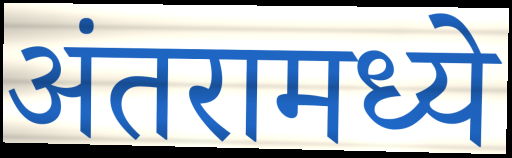
अंतरामध्ये